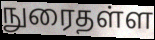
நுரைதள்ள